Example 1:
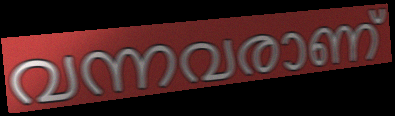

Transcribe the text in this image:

വന്നവരാണ്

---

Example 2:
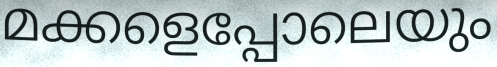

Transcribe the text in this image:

മക്കളെപ്പോലെയും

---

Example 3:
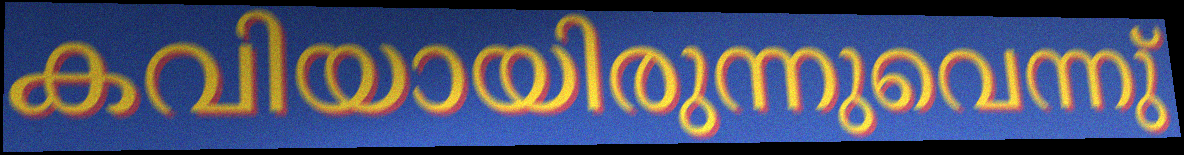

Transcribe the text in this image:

കവിയായിരുന്നുവെന്നു്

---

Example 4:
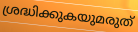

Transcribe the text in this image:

ശ്രദ്ധിക്കുകയുമരുത്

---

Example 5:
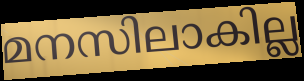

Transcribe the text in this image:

മനസിലാകില്ല